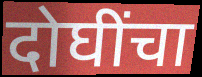
दोघींचा